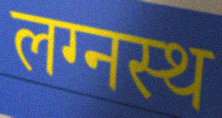
लग्नस्थ